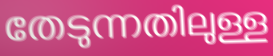
തേടുന്നതിലുള്ള